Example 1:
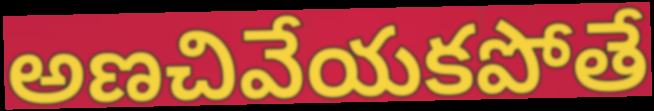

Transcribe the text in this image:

అణచివేయకపోతే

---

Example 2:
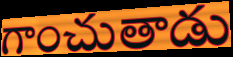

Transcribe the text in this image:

గాంచుతాడు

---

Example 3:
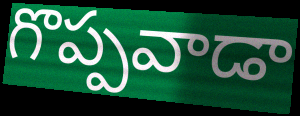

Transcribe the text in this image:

గొప్పవాడా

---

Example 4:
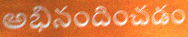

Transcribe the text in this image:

అభినందించడం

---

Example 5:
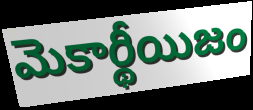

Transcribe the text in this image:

మెకార్థీయిజం